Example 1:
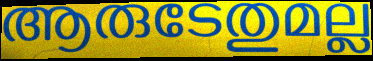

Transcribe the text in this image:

ആരുടേതുമല്ല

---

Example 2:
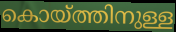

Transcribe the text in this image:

കൊയ്ത്തിനുള്ള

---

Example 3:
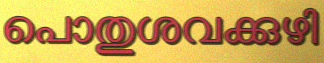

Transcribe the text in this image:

പൊതുശവക്കുഴി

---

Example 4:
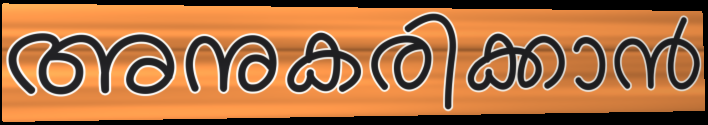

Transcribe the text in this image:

അനുകരിക്കാൻ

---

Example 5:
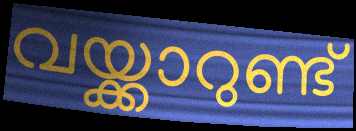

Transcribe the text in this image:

വയ്ക്കാറുണ്ട്